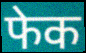
फेक